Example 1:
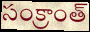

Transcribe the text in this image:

సంక్రాంత్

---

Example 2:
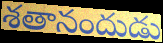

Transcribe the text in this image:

శతానందుడు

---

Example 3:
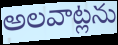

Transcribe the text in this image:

అలవాట్లను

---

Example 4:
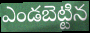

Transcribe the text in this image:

ఎండబెట్టిన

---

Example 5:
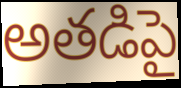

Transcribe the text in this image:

అతడిపై